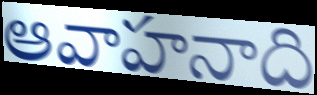
ఆవాహనాది